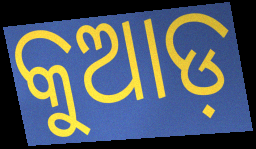
କୁଆଡ଼